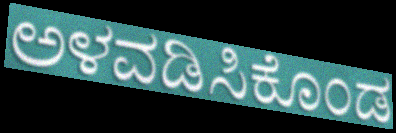
ಅಳವಡಿಸಿಕೊಂಡ